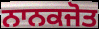
ਨਾਨਕਜੋਤ